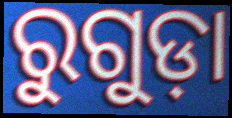
ରୁଗୁଡ଼ା